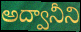
అద్వానీని